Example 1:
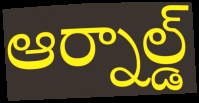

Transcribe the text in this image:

ఆర్నాల్డ్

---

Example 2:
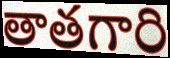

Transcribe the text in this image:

తాతగారి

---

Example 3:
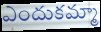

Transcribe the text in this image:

ఎందుకమ్మా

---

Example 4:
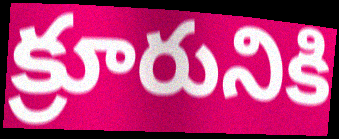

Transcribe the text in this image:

క్రూరునికి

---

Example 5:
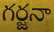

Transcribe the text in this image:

గర్జనా